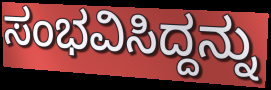
ಸಂಭವಿಸಿದ್ದನ್ನು